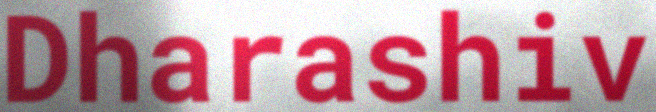
Dharashiv